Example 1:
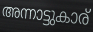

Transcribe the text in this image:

അന്നാട്ടുകാര്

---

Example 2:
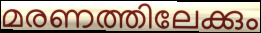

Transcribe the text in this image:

മരണത്തിലേക്കും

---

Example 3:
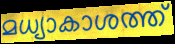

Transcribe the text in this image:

മധ്യാകാശത്ത്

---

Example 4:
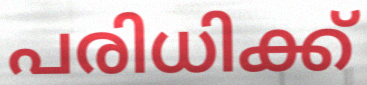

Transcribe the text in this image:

പരിധിക്ക്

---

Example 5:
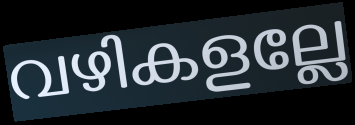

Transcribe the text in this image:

വഴികളല്ലേ